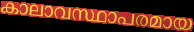
കാലാവസ്ഥാപരമായ